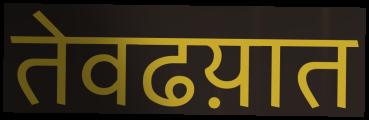
तेवढय़ात